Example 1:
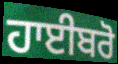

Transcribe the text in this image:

ਹਾਈਬਰੋ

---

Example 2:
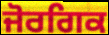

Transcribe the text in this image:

ਜੋਰਗਿਕ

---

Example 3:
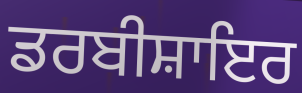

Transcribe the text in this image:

ਡਰਬੀਸ਼ਾਇਰ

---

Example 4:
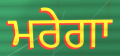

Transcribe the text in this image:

ਮਰੇਗਾ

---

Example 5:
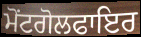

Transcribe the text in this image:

ਮੋਂਟਗੋਲਫਾਇਰ